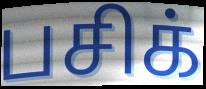
பசிக்